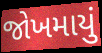
જોખમાયું